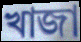
খাজা